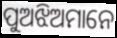
ପୁଅଝିଅମାନେ